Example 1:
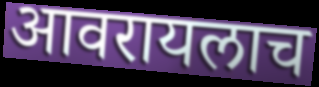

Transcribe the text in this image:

आवरायलाच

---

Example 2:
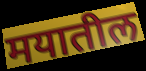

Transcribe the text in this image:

मयातील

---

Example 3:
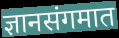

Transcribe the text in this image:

ज्ञानसंगमात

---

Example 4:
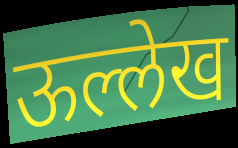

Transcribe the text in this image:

ऊल्लेख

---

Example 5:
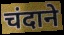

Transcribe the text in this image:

चंदाने